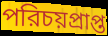
পরিচয়প্রাপ্ত